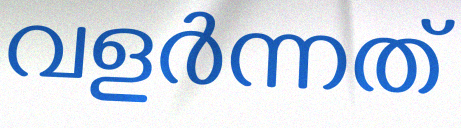
വളർന്നത്